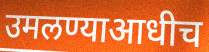
उमलण्याआधीच